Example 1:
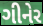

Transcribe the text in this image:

ગીનેર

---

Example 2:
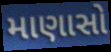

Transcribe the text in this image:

માણાસો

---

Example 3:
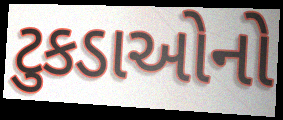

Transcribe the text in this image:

ટુકડાઓનો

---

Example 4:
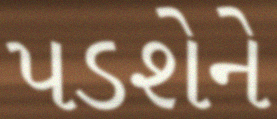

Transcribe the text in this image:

પડશેને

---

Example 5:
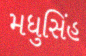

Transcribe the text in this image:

મધુસિંહ